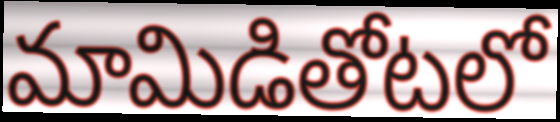
మామిడితోటలో